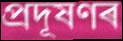
প্ৰদূষণৰ